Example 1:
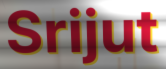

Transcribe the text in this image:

Srijut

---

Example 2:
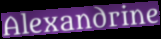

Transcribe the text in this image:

Alexandrine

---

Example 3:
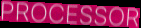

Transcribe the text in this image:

PROCESSOR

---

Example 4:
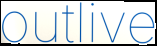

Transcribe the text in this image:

outlive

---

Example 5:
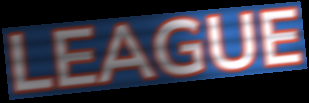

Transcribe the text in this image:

LEAGUE